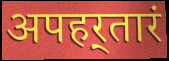
अपहर्तारं